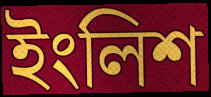
ইংলিশ